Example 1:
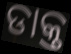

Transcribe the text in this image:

ଡାକ୍ତ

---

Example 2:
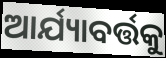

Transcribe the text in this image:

ଆର୍ଯ୍ୟାବର୍ତ୍ତକୁ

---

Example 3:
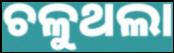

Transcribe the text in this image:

ଚଳୁଥଲା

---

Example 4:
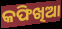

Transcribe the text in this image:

କଫିଖିଆ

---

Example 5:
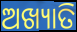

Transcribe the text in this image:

ଅଖ୍ୟାତି